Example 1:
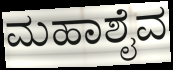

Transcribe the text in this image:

ಮಹಾಶೈವ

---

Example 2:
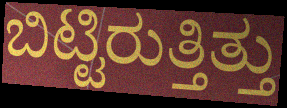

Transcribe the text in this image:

ಬಿಟ್ಟಿರುತ್ತಿತ್ತು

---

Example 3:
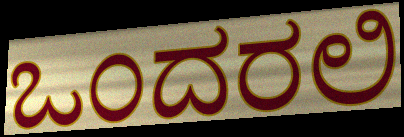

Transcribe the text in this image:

ಒಂದರಲಿ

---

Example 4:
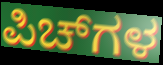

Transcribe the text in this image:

ಪಿಚ್‌ಗಳ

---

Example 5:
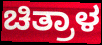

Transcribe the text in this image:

ಚಿತ್ರಾಳ